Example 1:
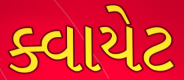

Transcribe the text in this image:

ક્વાયેટ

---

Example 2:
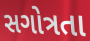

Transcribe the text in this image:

સગોત્રતા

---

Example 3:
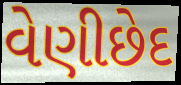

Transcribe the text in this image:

વેણીછેદ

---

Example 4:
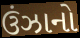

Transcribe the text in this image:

ઉંઝાનો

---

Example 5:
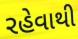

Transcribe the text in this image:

રહેવાથી